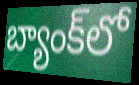
బ్యాంక్‌లో